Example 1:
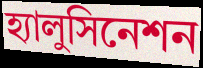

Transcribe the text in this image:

হ্যালুসিনেশন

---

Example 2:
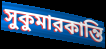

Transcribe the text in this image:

সুকুমারকান্তি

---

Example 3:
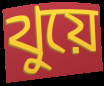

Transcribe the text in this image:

থুয়ে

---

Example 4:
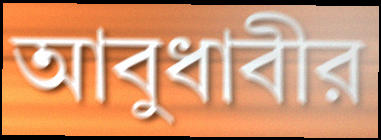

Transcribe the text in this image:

আবুধাবীর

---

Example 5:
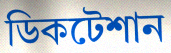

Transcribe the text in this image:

ডিকটেশান